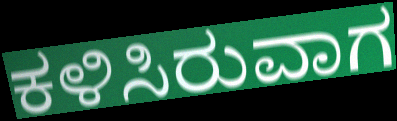
ಕಳಿಸಿರುವಾಗ